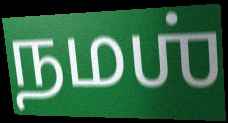
நமஶ்